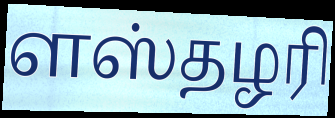
ளஸ்தழரி